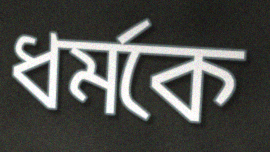
ধর্মকে